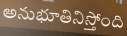
అనుభూతినిస్తోంది